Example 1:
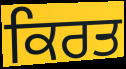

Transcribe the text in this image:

ਕਿਰਤ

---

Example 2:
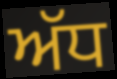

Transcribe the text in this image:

ਅੱਧ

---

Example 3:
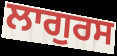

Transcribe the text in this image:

ਲਾਗੁਰਸ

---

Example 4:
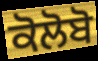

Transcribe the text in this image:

ਕੋਲੋਬੋ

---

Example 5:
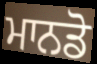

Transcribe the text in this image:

ਮਾਨਡੋ